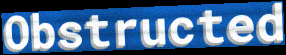
Obstructed